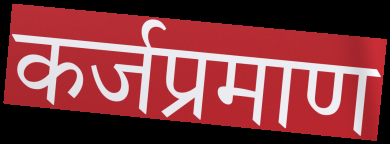
कर्जप्रमाण